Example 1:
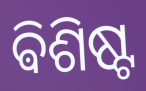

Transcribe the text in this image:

ଵିଶିଷ୍ଟ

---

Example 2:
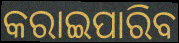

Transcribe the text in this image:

କରାଇପାରିବ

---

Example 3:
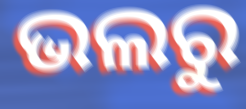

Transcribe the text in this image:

ଭଲରୁ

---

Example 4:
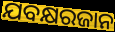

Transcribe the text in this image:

ଯବକ୍ଷରଜାନ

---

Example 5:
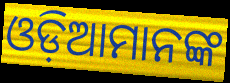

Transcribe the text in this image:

ଓଡ଼ିଆମାନଙ୍କ